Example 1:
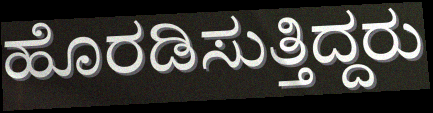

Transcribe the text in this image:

ಹೊರಡಿಸುತ್ತಿದ್ದರು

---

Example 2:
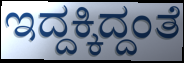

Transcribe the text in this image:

ಇದ್ದಕ್ಕಿದ್ದಂತೆ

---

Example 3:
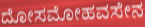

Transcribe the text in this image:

ದೋಸಮೋಹವಸೇನ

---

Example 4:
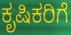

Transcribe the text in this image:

ಕೃಷಿಕರಿಗೆ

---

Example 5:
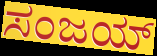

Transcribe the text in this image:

ಸಂಜಯ್